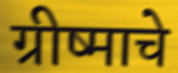
ग्रीष्माचे